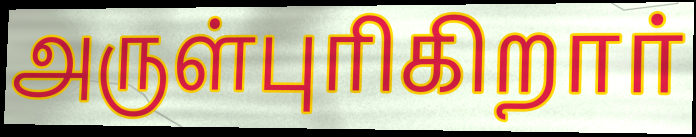
அருள்புரிகிறார்